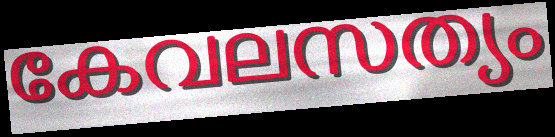
കേവലസത്യം